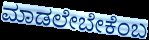
ಮಾಡಲೇಬೇಕೆಂಬ